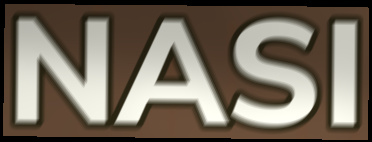
NASI